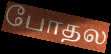
போதல